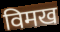
विमख